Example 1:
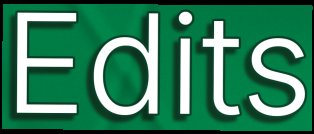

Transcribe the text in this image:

Edits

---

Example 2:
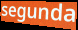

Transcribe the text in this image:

segunda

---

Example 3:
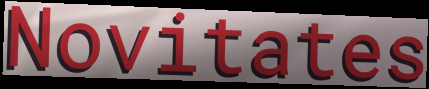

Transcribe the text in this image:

Novitates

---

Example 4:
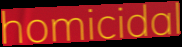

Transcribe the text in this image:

homicidal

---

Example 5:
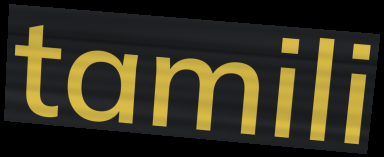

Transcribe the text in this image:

tamili